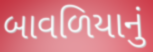
બાવળિયાનું